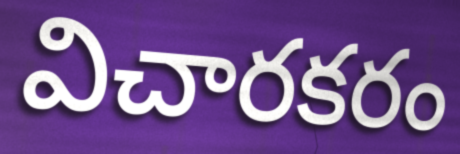
విచారకరం